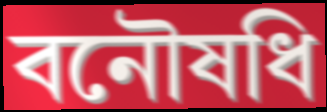
বনৌষধি